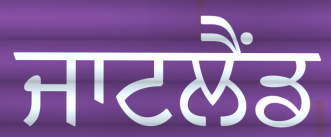
ਜਾਟਲੈਂਡ